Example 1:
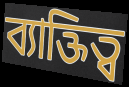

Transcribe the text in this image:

ব্যাক্তিত্ব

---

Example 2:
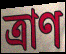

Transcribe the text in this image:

ত্রাণ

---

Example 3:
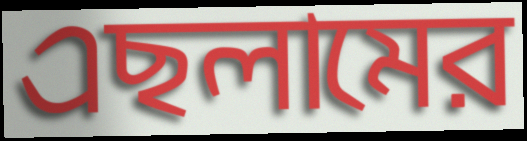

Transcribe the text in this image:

এছলামের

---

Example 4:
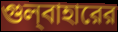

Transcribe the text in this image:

গুল্‌বাহারের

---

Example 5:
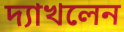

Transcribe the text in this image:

দ্যাখলেন